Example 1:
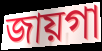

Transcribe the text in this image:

জায়গা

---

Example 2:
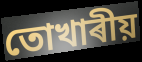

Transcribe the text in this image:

তোখাৰীয়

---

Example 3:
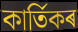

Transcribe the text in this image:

কাৰ্তিকৰ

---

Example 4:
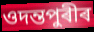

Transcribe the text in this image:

ওদন্তপুৰীৰ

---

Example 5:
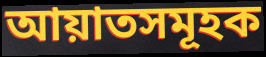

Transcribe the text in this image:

আয়াতসমূহক